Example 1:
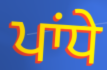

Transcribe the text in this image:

ਪਾਂਧੇ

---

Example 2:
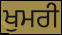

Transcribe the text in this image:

ਖੁਮਰੀ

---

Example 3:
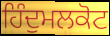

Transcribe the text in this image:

ਹਿੰਦੁਮਲਕੋਟ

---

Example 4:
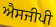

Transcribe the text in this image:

ਐਸਜੀਪੀ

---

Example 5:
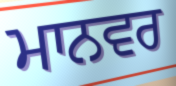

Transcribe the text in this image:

ਮਾਨਵਰ